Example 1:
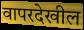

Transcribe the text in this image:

वापरदेखील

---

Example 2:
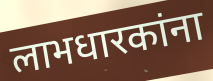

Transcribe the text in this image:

लाभधारकांना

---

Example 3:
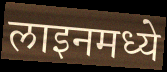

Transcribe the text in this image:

लाइनमध्ये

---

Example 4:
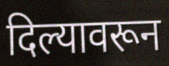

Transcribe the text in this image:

दिल्यावरून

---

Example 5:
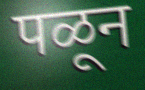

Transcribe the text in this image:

पळून